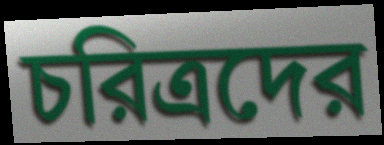
চরিত্রদের